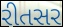
રીતસર